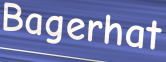
Bagerhat